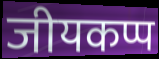
जीयकप्प